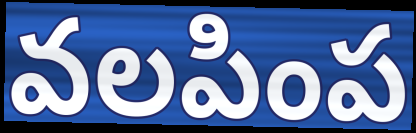
వలపింప